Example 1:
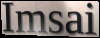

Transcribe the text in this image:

Imsai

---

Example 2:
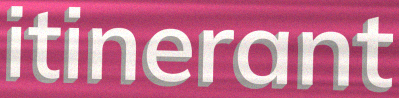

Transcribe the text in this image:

itinerant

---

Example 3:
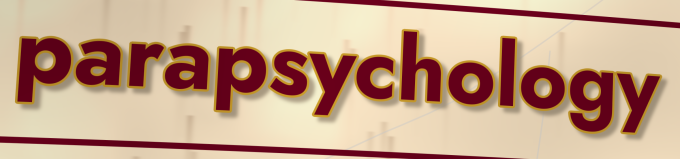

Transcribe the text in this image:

parapsychology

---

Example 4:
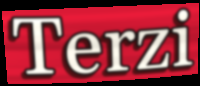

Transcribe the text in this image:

Terzi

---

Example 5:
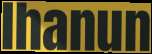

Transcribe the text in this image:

lhanun